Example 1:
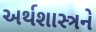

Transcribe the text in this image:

અર્થશાસ્ત્રને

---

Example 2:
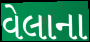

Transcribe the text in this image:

વેલાના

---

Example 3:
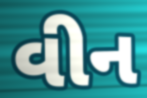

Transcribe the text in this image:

વીન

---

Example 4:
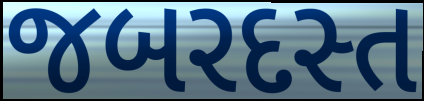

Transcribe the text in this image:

જબરદસ્ત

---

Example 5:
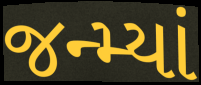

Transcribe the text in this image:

જન્મ્યાં